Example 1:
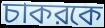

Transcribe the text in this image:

চাকরকে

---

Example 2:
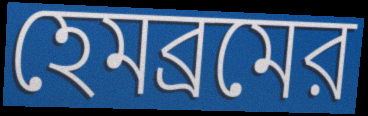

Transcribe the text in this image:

হেমব্রমের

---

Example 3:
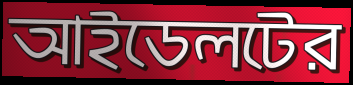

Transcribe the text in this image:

আইডেলটের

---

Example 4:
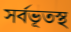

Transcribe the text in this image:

সর্বভূতস্থ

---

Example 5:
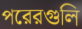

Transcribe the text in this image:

পরেরগুলি